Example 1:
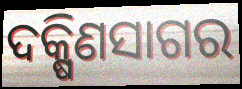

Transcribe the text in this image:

ଦକ୍ଷିଣସାଗର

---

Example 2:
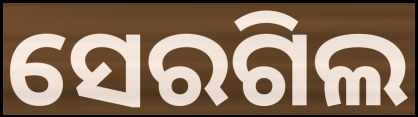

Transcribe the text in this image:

ସେରଗିଲ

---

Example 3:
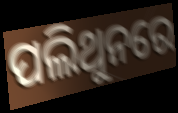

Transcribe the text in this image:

ପଲିଥୁନରେ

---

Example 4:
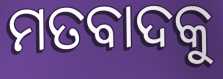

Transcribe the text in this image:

ମତବାଦକୁ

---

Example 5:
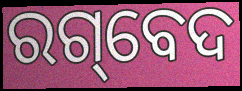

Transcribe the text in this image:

ରଗ୍‌ବେଦ